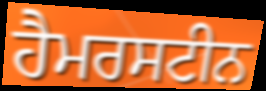
ਹੈਮਰਸਟੀਨ